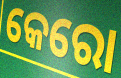
କେରୋ